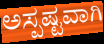
ಅಸ್ಪಷ್ಟವಾಗಿ